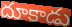
దూకాడు